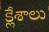
క్లేశాలు